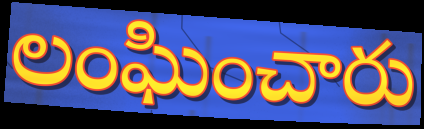
లంఘించారు